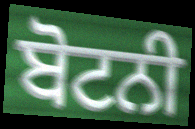
ਬੋਟਨੀ